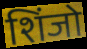
शिंजो